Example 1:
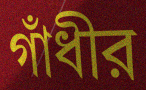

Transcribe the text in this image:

গাঁধীর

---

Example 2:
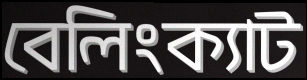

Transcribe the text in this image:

বেলিংক্যাট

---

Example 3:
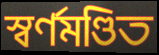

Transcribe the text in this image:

স্বর্ণমণ্ডিত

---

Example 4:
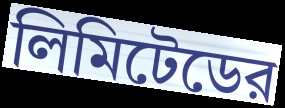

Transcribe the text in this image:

লিমিটেডের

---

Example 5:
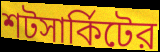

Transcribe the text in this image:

শটসার্কিটের